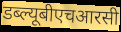
डब्ल्यूबीएचआरसी